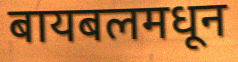
बायबलमधून